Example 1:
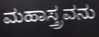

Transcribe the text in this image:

ಮಹಾಸ್ತ್ರವನು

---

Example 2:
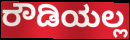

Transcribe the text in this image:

ರೌಡಿಯಲ್ಲ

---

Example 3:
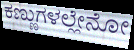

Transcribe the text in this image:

ಕಣ್ಣುಗಳಲ್ಲೇನೋ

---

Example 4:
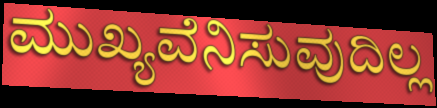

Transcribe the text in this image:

ಮುಖ್ಯವೆನಿಸುವುದಿಲ್ಲ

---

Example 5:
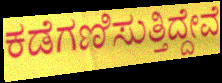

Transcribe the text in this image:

ಕಡೆಗಣಿಸುತ್ತಿದ್ದೇವೆ